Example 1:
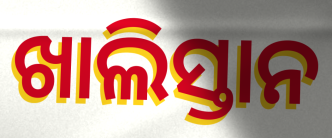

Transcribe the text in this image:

ଖାଲିସ୍ତାନ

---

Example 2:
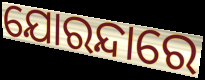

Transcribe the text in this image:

ଯୋରନ୍ଦାରେ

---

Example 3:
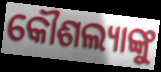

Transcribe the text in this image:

କୌଶଲ୍ୟାଙ୍କୁ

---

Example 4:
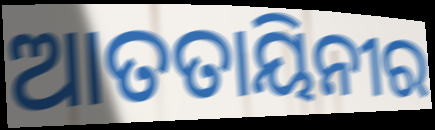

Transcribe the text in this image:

ଆତତାୟିନୀର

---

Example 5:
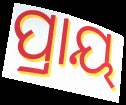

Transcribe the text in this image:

ପ୍ରାୟ